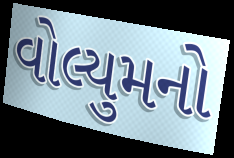
વોલ્યુમનો